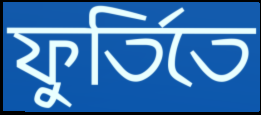
ফুর্তিতে